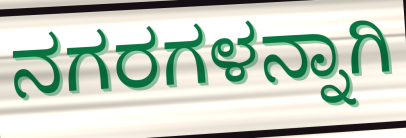
ನಗರಗಳನ್ನಾಗಿ